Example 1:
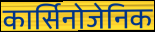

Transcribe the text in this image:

कार्सिनोजेनिक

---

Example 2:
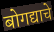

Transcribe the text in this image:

बोगद्याचे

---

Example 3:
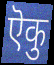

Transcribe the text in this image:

ऎकु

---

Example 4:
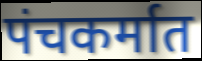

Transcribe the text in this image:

पंचकर्मात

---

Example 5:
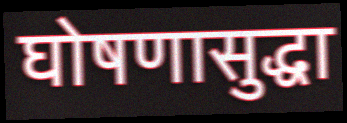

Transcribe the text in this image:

घोषणासुद्धा